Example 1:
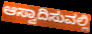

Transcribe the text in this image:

ಆಸ್ವಾದಿಸುವಲ್ಲಿ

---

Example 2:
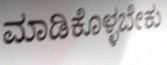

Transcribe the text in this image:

ಮಾಡಿಕೊಳ್ಳಬೇಕು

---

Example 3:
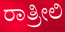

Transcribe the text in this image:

ರಾತ್ರೀಲಿ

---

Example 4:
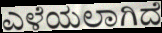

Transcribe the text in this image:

ಎಳೆಯಲಾಗಿದೆ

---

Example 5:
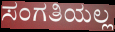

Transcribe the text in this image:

ಸಂಗತಿಯಲ್ಲ